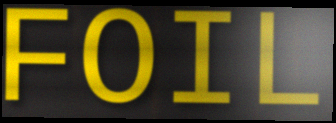
FOIL